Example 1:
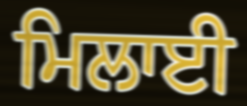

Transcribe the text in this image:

ਮਿਲਾਈ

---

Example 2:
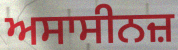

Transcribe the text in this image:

ਅਸਾਸੀਨਜ਼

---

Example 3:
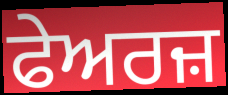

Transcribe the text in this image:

ਫੇਅਰਜ਼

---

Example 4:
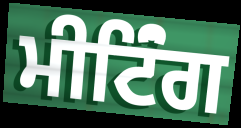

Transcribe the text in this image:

ਮੀਟਿਂੰਗ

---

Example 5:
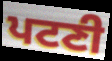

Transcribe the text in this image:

ਪਟਣੀ